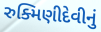
રુક્મિણીદેવીનું